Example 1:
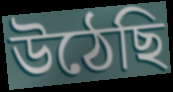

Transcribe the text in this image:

উঠেছি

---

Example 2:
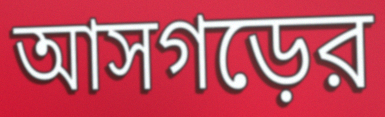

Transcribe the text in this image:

আসগড়ের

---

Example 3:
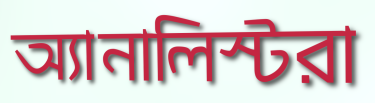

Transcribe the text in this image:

অ্যানালিস্টরা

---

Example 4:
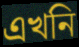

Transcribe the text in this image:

এখনি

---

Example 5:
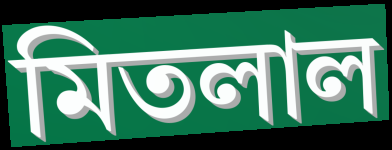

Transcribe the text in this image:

মিতলাল